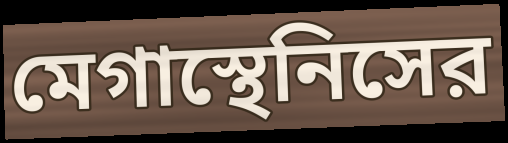
মেগাস্থেনিসের